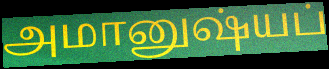
அமானுஷ்யப்